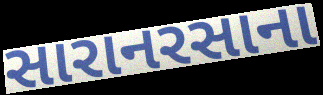
સારાનરસાના